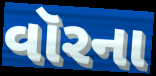
વૉરના